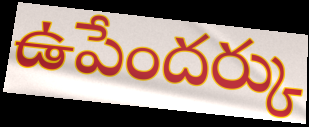
ఉపేందర్కు